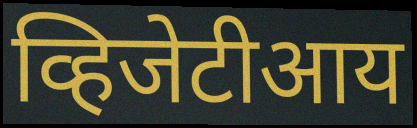
व्हिजेटीआय